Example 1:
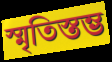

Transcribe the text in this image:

স্মৃতিস্তম্ভ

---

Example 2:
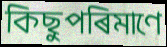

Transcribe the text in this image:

কিছুপৰিমাণে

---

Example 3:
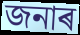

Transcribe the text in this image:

জনাৰ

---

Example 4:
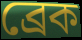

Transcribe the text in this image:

ব্ৰেক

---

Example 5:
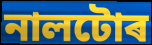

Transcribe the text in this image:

নালটোৰ